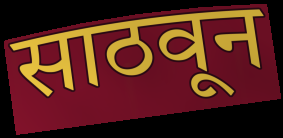
साठवून